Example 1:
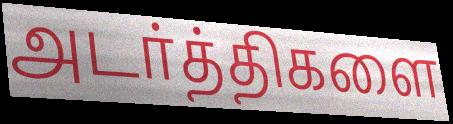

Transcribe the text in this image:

அடர்த்திகளை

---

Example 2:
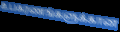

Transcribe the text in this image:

உபகரணங்களுக்கான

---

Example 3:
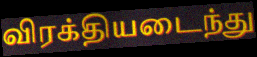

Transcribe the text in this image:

விரக்தியடைந்து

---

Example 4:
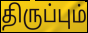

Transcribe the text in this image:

திருப்பும்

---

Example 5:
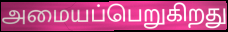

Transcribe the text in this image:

அமையப்பெறுகிறது